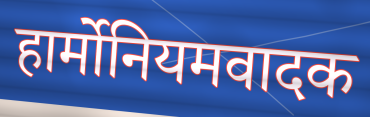
हार्मोनियमवादक